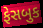
ફેસબુક